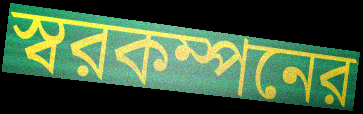
স্বরকম্পনের